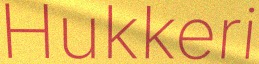
Hukkeri